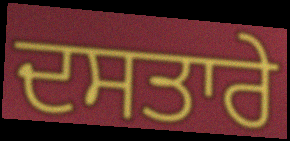
ਦਸਤਾਰੇ